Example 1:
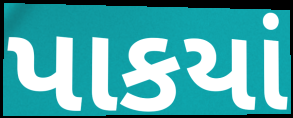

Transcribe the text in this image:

પાકયાં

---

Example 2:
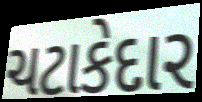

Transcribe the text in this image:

ચટાકેદાર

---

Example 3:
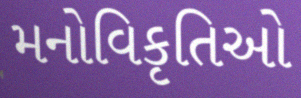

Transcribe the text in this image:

મનોવિકૃતિઓ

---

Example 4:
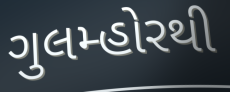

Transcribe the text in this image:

ગુલમ્હોરથી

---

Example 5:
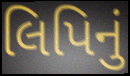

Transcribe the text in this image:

લિપિનું